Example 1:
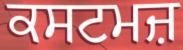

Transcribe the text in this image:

ਕਸਟਮਜ਼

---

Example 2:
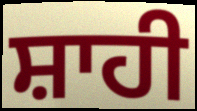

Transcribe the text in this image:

ਸ਼ਾਹੀ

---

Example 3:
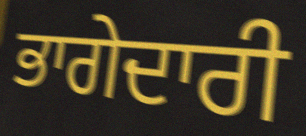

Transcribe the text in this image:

ਭਾਗੇਦਾਰੀ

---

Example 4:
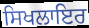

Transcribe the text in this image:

ਸਿਖਲਾਇਰ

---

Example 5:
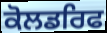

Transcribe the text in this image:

ਕੋਲਡਰਿਫ